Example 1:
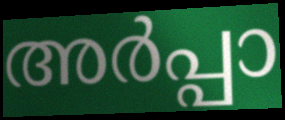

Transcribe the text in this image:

അർപ്പാ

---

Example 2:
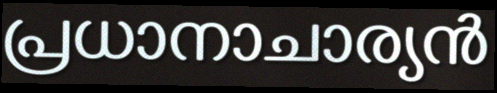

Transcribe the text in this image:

പ്രധാനാചാര്യൻ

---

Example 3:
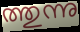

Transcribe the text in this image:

ത്തുന്നു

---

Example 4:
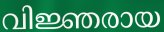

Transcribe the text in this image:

വിജ്ഞരായ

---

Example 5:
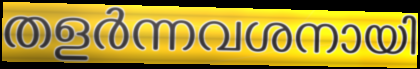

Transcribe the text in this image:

തളർന്നവശനായി